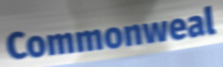
Commonweal